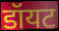
डॉयट